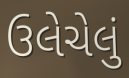
ઉલેચેલું